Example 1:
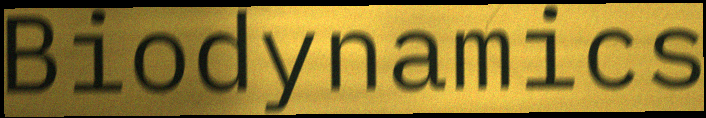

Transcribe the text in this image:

Biodynamics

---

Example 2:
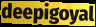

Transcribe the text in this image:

deepigoyal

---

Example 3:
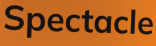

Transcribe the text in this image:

Spectacle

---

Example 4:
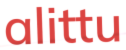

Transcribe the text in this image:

alittu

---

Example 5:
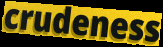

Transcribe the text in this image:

crudeness